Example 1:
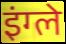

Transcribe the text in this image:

इंग्ले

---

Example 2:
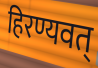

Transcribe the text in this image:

हिरण्यवत्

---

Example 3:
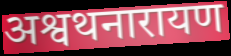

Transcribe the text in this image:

अश्वथनारायण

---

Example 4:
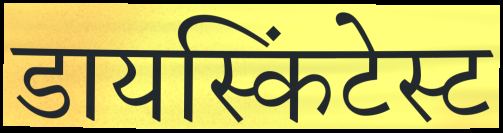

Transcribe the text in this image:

डायस्किंटेस्ट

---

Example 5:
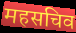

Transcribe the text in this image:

महसचिव